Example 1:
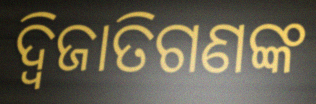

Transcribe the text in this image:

ଦ୍ୱିଜାତିଗଣଙ୍କ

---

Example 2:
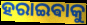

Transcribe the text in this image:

ହରାଇଵାକୁ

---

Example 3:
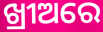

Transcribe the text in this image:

ଖ୍ରୀଅରେ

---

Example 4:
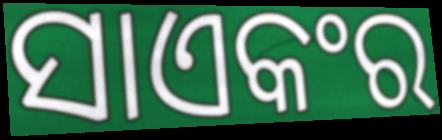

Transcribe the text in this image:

ସାଏକଂର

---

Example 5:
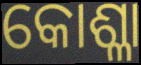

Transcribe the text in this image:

କୋଶ୍ଳା